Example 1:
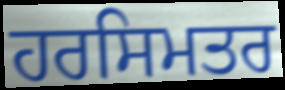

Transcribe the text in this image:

ਹਰਸਿਮਤਰ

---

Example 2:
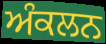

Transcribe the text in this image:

ਅੰਕਲਨ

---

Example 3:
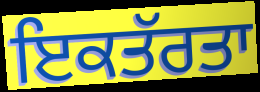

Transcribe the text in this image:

ਇਕਤੱਰਤਾ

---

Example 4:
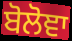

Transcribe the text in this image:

ਬੋਲੋਞਾ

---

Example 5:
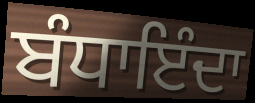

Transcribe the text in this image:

ਬੰਧਾਇੰਦਾ